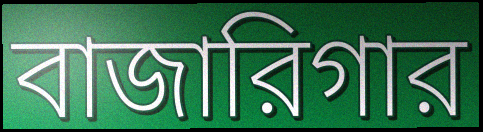
বাজারিগার